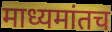
माध्यमांतच